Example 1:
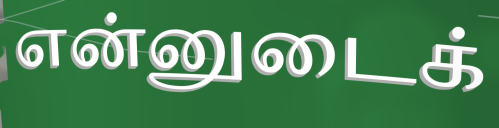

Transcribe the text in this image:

என்னுடைக்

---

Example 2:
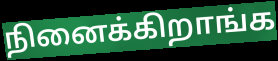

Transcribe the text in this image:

நினைக்கிறாங்க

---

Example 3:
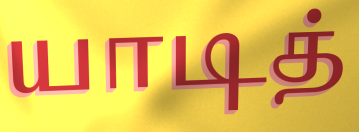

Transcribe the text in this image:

யாடித்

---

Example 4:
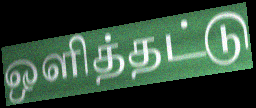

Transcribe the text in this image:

ஒளித்தட்டு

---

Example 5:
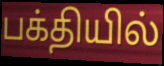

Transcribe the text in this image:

பக்தியில்